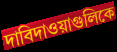
দাবিদাওয়াগুলিকে